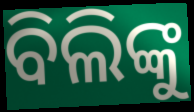
ବିଲିଙ୍କୁ